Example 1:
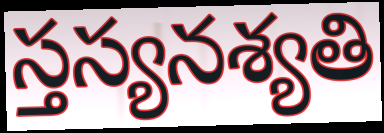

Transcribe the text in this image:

స్తస్యనశ్యతి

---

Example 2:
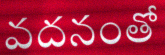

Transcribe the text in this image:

వదనంతో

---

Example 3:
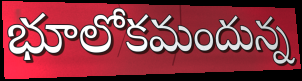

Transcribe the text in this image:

భూలోకమందున్న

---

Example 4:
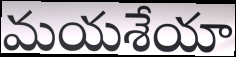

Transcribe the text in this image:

మయశేయా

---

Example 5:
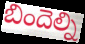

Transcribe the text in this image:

బిందెల్ని